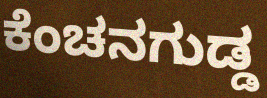
ಕೆಂಚನಗುಡ್ಡ